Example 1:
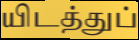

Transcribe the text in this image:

யிடத்துப்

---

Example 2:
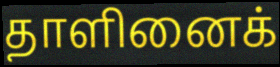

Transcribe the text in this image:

தாளினைக்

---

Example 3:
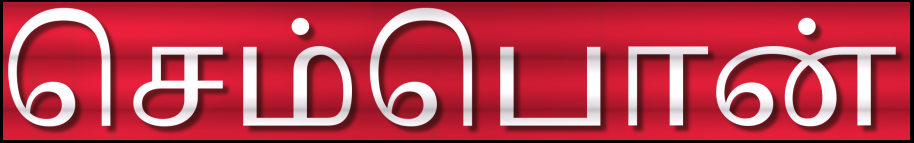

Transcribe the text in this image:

செம்பொன்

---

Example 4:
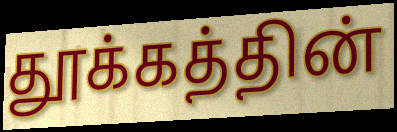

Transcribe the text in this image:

தூக்கத்தின்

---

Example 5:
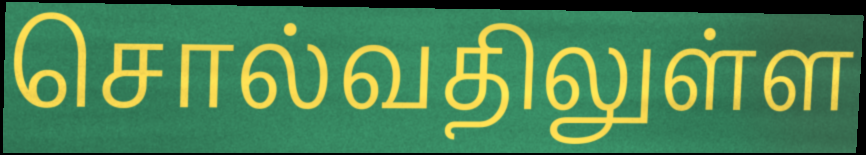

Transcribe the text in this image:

சொல்வதிலுள்ள